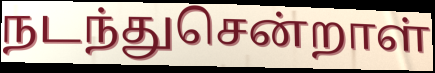
நடந்துசென்றாள்